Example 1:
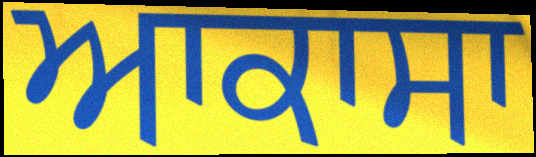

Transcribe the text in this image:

ਆਕਾਸਾ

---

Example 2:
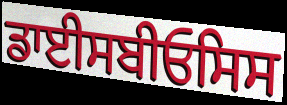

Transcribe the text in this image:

ਡਾਈਸਬੀਓਸਿਸ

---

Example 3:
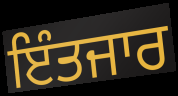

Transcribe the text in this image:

ਇੰਤਜਾਰ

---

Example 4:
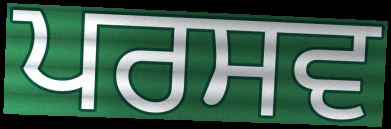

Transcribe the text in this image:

ਪਰਸਵ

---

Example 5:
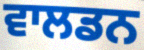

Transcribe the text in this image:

ਵਾਲਡਨ